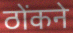
ठोंकने